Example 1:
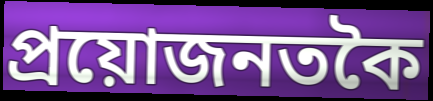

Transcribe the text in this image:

প্ৰয়োজনতকৈ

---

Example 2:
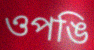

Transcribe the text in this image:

ওপঙি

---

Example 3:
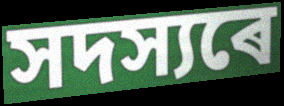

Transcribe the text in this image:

সদস্যৰে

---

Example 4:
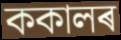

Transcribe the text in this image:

ককালৰ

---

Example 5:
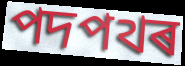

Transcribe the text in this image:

পদপথৰ